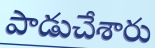
పాడుచేశారు